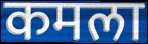
कमला